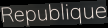
Republique